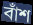
বাঁশ